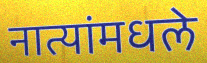
नात्यांमधले